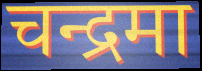
चन्द्रमा